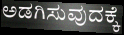
ಅಡಗಿಸುವುದಕ್ಕೆ